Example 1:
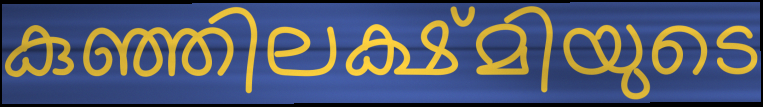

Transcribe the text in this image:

കുഞ്ഞിലക്ഷ്മിയുടെ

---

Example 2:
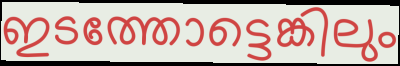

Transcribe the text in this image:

ഇടത്തോട്ടെങ്കിലും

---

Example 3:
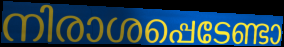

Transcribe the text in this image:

നിരാശപ്പെടേണ്ടാ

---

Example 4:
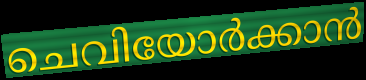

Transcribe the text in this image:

ചെവിയോർക്കാൻ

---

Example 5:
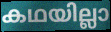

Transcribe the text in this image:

കഥയില്ലാ